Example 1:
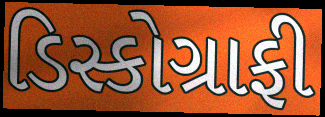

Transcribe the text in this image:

ડિસ્કોગ્રાફી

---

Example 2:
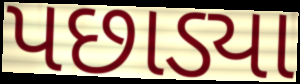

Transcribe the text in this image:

પછાડ્યા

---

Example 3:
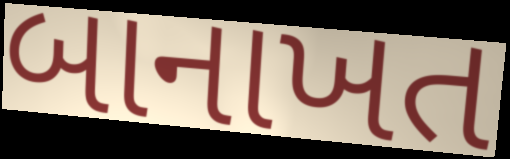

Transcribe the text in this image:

બાનાખત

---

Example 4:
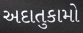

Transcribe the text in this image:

અદાતુકામો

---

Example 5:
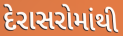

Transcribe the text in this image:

દેરાસરોમાંથી